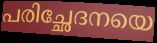
പരിച്ഛേദനയെ